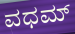
ವಧಮ್